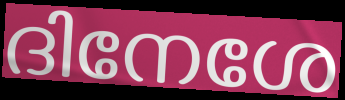
ദിനേശേ